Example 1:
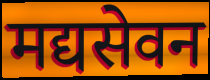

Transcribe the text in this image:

मद्यसेवन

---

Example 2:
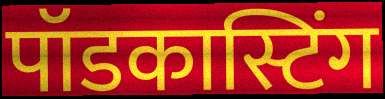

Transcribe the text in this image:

पॉडकास्टिंग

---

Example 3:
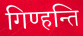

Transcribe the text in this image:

गिण्हन्ति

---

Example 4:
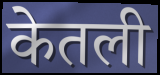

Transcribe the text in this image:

केतली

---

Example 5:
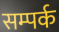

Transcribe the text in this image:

सम्‍पर्क